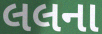
લલના